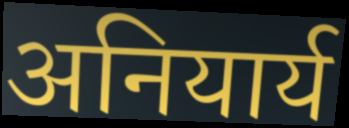
अनियार्य